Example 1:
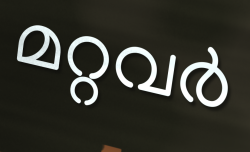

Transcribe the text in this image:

മറ്റവർ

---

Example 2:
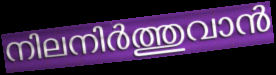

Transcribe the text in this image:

നിലനിർത്തുവാൻ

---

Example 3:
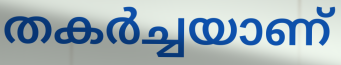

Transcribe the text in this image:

തകർച്ചയാണ്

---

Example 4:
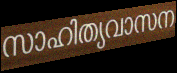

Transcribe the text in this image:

സാഹിത്യവാസന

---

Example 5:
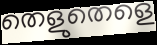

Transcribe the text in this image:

തെളുതെളെ